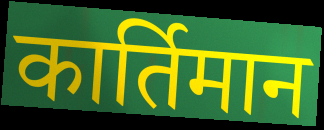
कार्तिमान